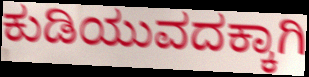
ಕುಡಿಯುವದಕ್ಕಾಗಿ